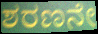
ಶರಣನೇ